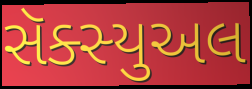
સૅક્સ્યુઅલ